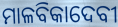
ମାଳବିକାଦେବୀ